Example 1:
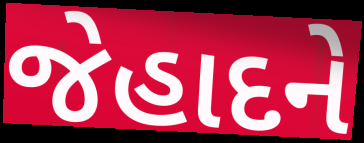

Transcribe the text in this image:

જેહાદને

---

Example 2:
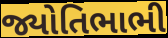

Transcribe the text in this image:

જ્યોતિભાભી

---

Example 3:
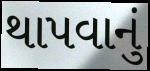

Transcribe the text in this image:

થાપવાનું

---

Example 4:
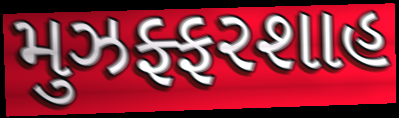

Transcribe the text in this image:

મુઝફ્ફરશાહ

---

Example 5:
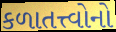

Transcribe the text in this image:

કળાતત્ત્વોનો